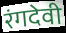
रंगदेवी